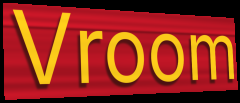
Vroom